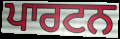
ਪਾਰਟਨ